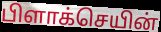
பிளாக்செயின்